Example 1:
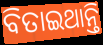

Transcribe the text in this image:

ବିତାଇଥାନ୍ତି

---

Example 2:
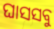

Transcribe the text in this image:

ଘାସସବୁ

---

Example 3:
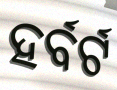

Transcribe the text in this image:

ହର୍ବର୍ଟ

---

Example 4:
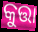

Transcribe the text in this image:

କୁତ୍ତା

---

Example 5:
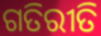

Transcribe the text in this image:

ଗତିରୀତି